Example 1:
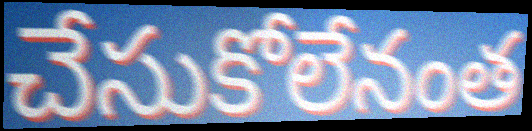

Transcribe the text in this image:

చేసుకోలేనంత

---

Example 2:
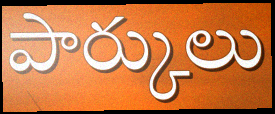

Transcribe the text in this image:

పార్కులు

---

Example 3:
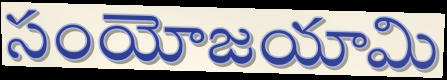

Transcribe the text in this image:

సంయోజయామి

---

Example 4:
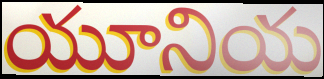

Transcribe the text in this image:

యూనియ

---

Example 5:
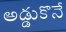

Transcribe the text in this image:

అడ్డుకొనే